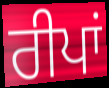
ਰੀਪਾਂ